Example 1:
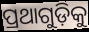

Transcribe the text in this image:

ପ୍ରଥାଗୁଡ଼ିକୁ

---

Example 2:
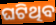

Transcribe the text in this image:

ଘଟିଥିବ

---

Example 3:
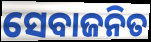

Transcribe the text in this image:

ସେବାଜନିତ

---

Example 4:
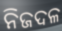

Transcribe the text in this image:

ନିଜଦଳ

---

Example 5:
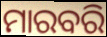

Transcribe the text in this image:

ମାରବରି